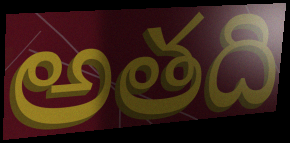
అతది